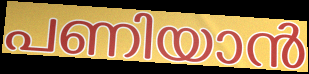
പണിയാൻ